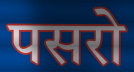
पसरो